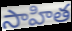
సాహిత